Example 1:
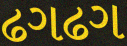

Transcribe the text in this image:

ઢગઢગ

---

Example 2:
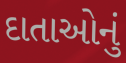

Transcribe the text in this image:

દાતાઓનું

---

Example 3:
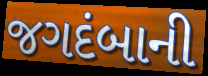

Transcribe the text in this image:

જગદંબાની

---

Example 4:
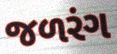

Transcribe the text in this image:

જળરંગ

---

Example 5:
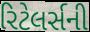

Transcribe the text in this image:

રિટેલર્સની